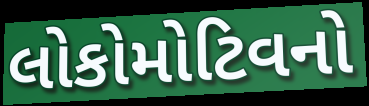
લોકોમોટિવનો